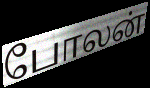
போலன்